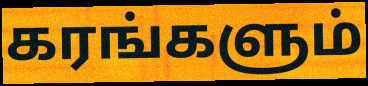
கரங்களும்